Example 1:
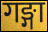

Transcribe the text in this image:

गङ्गा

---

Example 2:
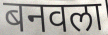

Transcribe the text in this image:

बनवला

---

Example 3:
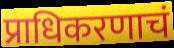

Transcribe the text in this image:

प्राधिकरणाचं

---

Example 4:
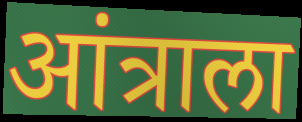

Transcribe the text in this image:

आंत्राला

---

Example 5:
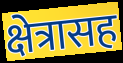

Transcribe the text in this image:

क्षेत्रासह